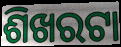
ଶିଖରଟା